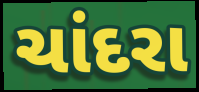
ચાંદરા